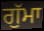
ਗੁੱਮਾ